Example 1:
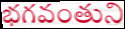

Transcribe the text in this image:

భగవంతుని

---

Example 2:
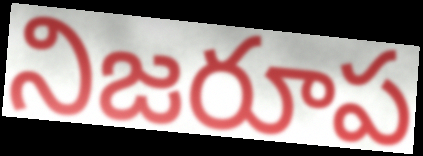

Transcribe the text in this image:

నిజరూప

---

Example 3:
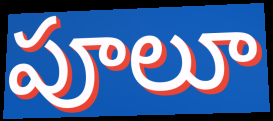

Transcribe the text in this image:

పూలూ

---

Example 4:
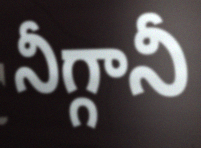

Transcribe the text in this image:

నీగ్గానీ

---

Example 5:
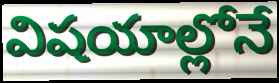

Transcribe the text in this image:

విషయాల్లోనే